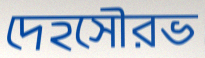
দেহসৌরভ